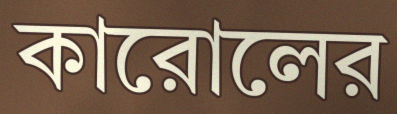
কারোলের